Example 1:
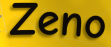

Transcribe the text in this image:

Zeno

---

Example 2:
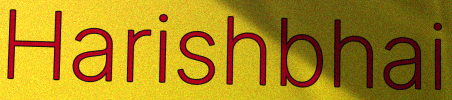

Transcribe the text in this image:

Harishbhai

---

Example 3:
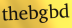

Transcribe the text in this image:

thebgbd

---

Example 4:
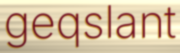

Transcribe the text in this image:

geqslant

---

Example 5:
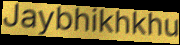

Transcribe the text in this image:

Jaybhikhkhu